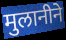
मुलानीने